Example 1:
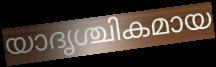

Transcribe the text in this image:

യാദൃശ്ചികമായ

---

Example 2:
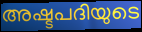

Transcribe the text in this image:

അഷ്ടപദിയുടെ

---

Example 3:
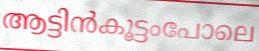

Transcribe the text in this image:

ആട്ടിൻകൂട്ടംപോലെ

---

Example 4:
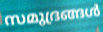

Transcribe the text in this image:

സമുദ്രങ്ങൾ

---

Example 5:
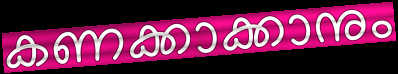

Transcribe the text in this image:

കണക്കാക്കാനും